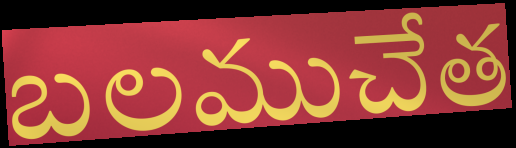
బలముచేత